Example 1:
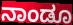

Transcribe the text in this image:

ನಾಂಡೂ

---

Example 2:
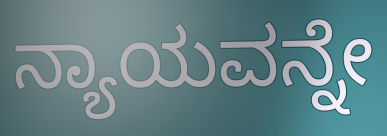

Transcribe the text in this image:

ನ್ಯಾಯವನ್ನೇ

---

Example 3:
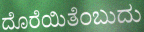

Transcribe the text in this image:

ದೊರೆಯಿತೆಂಬುದು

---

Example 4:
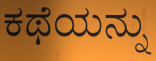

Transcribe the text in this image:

ಕಥೆಯನ್ನು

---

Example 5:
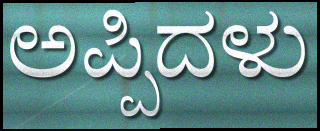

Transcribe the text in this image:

ಅಪ್ಪಿದಳು